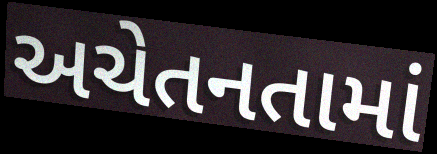
અચેતનતામાં